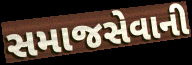
સમાજસેવાની